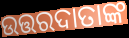
ଉତ୍ତରଦାତାଙ୍କ